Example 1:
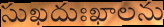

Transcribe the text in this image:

సుఖదుఃఖాలను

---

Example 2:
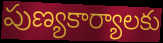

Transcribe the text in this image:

పుణ్యకార్యాలకు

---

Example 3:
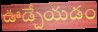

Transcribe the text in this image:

ఊడ్చేయడం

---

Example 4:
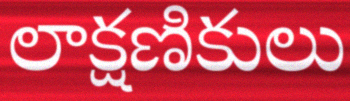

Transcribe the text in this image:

లాక్షణికులు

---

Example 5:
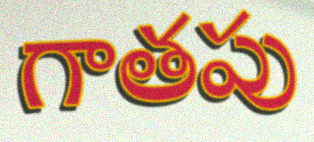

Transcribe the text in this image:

గాతపు